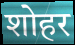
शोहर